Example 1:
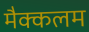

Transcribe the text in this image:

मैक्कलम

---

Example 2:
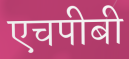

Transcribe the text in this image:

एचपीबी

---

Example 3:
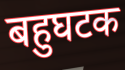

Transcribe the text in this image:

बहुघटक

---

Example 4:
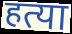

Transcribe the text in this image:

हत्‍या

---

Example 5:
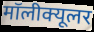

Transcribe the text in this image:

मॉलीक्यूलर